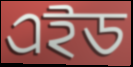
এইড